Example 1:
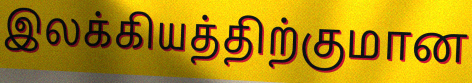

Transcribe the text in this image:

இலக்கியத்திற்குமான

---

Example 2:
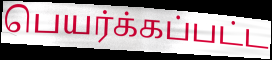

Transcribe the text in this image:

பெயர்க்கப்பட்ட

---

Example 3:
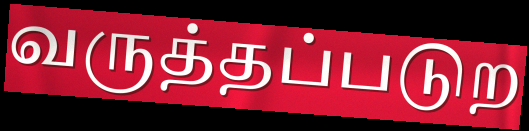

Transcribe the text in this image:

வருத்தப்படுற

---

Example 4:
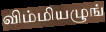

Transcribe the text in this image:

விம்மியழுங்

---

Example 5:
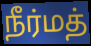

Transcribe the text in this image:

நீர்மத்